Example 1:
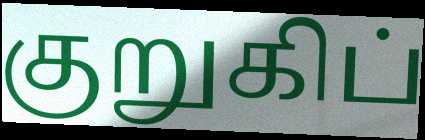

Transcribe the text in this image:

குறுகிப்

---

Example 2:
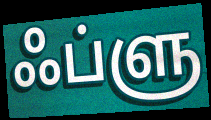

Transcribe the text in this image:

ஃப்ளு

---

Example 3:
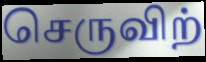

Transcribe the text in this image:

செருவிற்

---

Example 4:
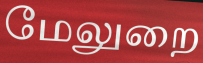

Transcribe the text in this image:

மேலுறை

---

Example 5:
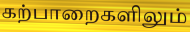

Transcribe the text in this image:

கற்பாறைகளிலும்